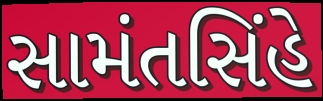
સામંતસિંહે